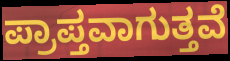
ಪ್ರಾಪ್ತವಾಗುತ್ತವೆ